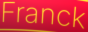
Franck